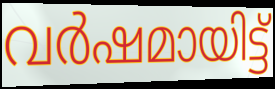
വർഷമായിട്ട്